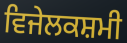
ਵਿਜੇਲਕਸ਼ਮੀ